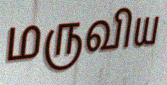
மருவிய